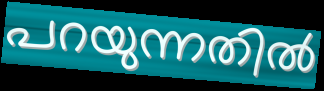
പറയുന്നതിൽ